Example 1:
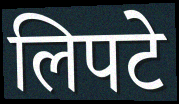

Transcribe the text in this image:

लिपटे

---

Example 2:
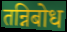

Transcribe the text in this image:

तन्निबोध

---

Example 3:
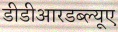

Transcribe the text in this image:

डीडीआरडब्ल्यूए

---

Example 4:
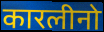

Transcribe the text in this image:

कारलीनो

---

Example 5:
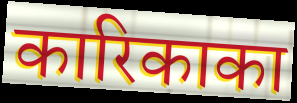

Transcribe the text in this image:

कारिकाका